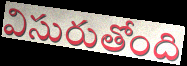
విసురుతోంది